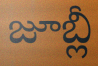
జూబ్లీ